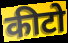
कीटो